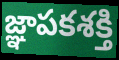
జ్ఞాపకశక్తి